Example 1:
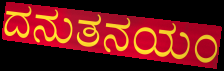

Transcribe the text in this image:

ದನುತನಯಂ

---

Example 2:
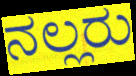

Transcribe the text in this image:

ನಲ್ಲರು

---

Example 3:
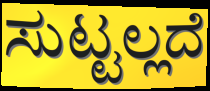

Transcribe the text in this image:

ಸುಟ್ಟಲ್ಲದೆ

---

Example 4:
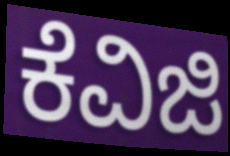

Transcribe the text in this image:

ಕೆವಿಜಿ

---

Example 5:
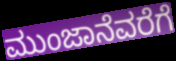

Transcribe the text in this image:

ಮುಂಜಾನೆವರೆಗೆ